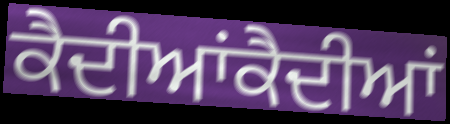
ਕੈਦੀਆਂਕੈਦੀਆਂ